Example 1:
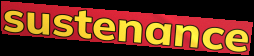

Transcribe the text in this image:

sustenance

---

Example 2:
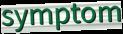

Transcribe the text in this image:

symptom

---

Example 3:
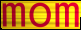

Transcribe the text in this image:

mom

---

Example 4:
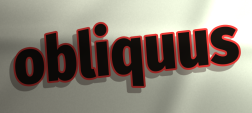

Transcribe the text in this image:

obliquus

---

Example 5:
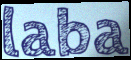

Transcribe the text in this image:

laba